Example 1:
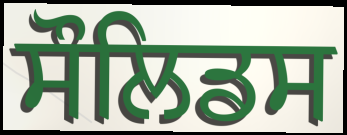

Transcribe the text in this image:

ਸੌਲਿਡਸ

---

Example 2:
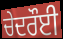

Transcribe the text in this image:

ਚੇਦਰੌਈ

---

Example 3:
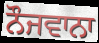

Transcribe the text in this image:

ਨੌਜਵਾਨਾ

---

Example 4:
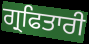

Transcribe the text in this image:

ਗ੍ਰਫਿਤਾਰੀ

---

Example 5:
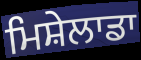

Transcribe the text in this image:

ਮਿਸ਼ੇਲਾਡਾ